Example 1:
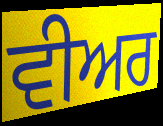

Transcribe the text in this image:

ਵੀਅਰ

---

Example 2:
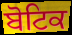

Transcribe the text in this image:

ਬੋਟਿਕ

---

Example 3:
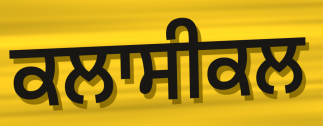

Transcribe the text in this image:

ਕਲਾਸੀਕਲ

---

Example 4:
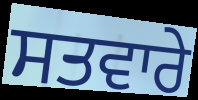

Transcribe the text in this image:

ਸਤਵਾਰੇ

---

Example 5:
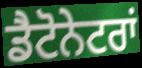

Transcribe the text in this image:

ਡੈਟੋਨੇਟਰਾਂ